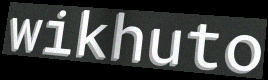
wikhuto